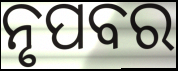
ନୃପବର